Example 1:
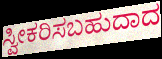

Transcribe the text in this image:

ಸ್ವೀಕರಿಸಬಹುದಾದ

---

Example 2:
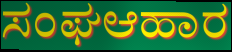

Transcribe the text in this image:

ಸಂಘಆಹಾರ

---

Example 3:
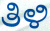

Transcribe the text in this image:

ತಿಳಿ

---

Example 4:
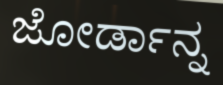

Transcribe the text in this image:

ಜೋರ್ಡಾನ್ನ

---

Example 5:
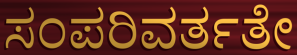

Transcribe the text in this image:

ಸಂಪರಿವರ್ತತೇ